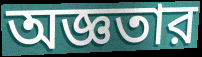
অজ্ঞতার